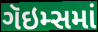
ગૅઇમ્સમાં